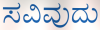
ಸವಿವುದು